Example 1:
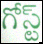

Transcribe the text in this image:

గోస్ట్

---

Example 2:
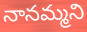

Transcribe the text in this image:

నానమ్మని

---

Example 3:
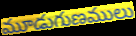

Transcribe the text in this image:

మూడుగుణములు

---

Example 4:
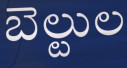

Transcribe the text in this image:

బెల్టుల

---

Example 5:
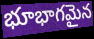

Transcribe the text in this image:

భూభాగమైన